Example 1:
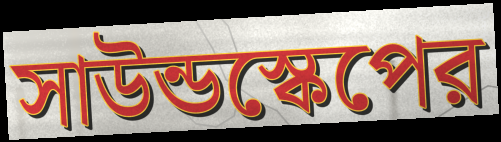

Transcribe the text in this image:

সাউন্ডস্কেপের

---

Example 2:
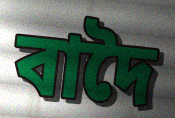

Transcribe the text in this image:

বাদৈ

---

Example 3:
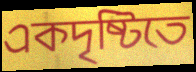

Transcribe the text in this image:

একদৃষ্টিতে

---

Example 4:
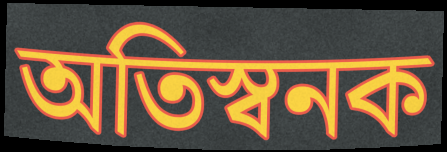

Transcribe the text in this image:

অতিস্বনক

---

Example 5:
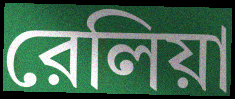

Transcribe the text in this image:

রেলিয়া